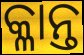
କ୍ଳାନ୍ତ